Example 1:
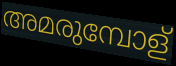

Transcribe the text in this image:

അമരുമ്പോള്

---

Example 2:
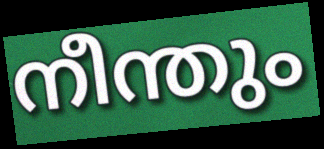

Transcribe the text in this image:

നീന്തും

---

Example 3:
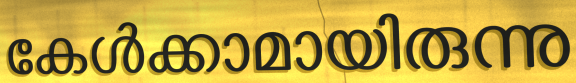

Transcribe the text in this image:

കേൾക്കാമായിരുന്നു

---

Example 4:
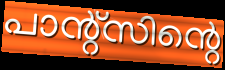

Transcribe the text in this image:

പാന്റ്സിന്റെ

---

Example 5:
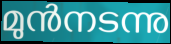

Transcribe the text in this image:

മുൻനടന്നു